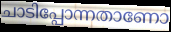
ചാടിപ്പോന്നതാണോ